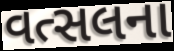
વત્સલના